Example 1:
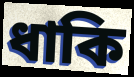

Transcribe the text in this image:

ধাকি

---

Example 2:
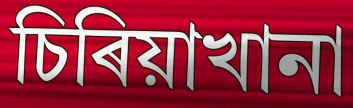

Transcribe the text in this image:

চিৰিয়াখানা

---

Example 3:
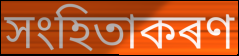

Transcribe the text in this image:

সংহিতাকৰণ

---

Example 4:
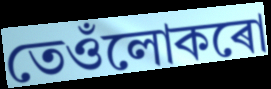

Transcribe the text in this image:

তেওঁলোকৰো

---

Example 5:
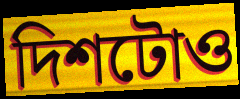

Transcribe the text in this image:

দিশটোও